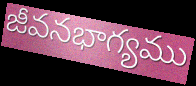
జీవనభాగ్యము